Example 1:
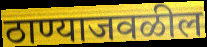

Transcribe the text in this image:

ठाण्याजवळील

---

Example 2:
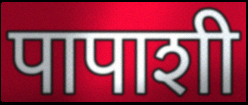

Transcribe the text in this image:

पापाशी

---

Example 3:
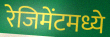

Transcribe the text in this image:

रेजिमेंटमध्ये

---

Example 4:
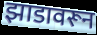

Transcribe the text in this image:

झाडावरून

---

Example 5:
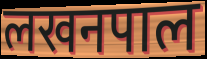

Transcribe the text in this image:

लखनपाल